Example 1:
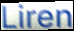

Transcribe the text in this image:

Liren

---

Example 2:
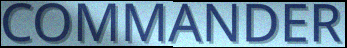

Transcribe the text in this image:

COMMANDER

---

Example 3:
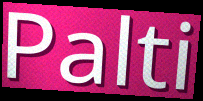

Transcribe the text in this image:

Palti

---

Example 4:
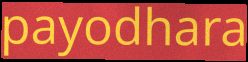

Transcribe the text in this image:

payodhara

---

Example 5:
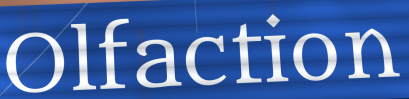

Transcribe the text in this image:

Olfaction